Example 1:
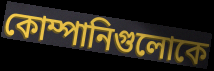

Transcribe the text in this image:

কোম্পানিগুলোকে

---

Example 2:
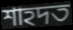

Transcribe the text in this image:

শাহদত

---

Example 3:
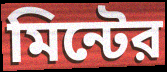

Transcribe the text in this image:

মিন্টের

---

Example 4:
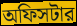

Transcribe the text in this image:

অফিসটার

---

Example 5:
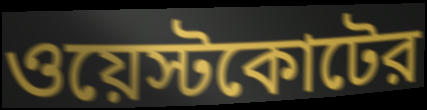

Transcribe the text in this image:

ওয়েস্টকোটের